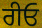
ਰੀਓ